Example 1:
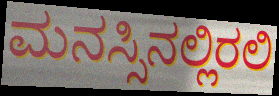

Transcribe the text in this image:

ಮನಸ್ಸಿನಲ್ಲಿರಲಿ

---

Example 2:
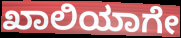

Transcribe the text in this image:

ಖಾಲಿಯಾಗೇ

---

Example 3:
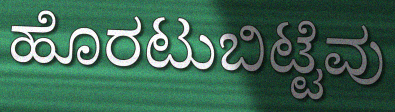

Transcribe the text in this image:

ಹೊರಟುಬಿಟ್ಟೆವು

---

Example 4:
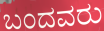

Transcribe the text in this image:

ಬಂದವರು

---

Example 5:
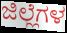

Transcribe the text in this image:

ಜಿಲ್ಲೆಗಳ